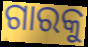
ଗାରକୁ